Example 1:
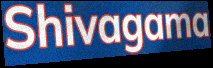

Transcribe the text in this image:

Shivagama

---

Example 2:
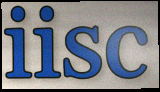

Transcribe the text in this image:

iisc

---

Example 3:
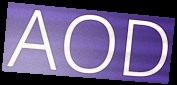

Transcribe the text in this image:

AOD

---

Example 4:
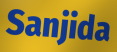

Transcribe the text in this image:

Sanjida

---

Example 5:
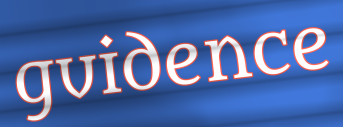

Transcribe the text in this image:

guidence